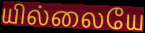
யில்லையே